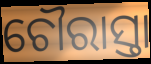
ଚୌରାସ୍ତା